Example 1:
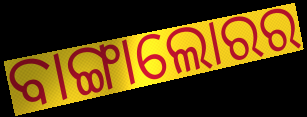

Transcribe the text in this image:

ବାଙ୍ଗାଲୋରର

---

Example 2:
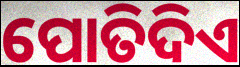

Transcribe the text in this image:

ପୋତିଦିଏ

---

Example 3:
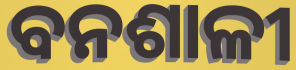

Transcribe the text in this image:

ବନଶାଳୀ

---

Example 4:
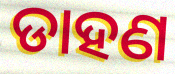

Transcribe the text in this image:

ଡାହଣ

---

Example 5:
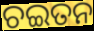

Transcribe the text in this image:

ଚଇତନ